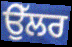
ਉੱਲਰ